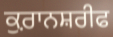
ਕ਼ੁਰਾਨਸ਼ਰੀਫ